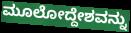
ಮೂಲೋದ್ದೇಶವನ್ನು